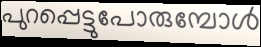
പുറപ്പെട്ടുപോരുമ്പോൾ